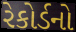
રેકોર્ડનો